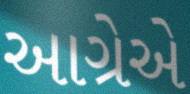
આગ્રેએ